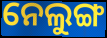
ନେଲୁଙ୍ଗ